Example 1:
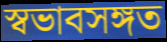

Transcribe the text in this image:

স্বভাবসঙ্গত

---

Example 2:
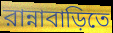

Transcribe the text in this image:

রান্নাবাড়িতে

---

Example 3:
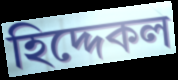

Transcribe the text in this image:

হিদ্দেকল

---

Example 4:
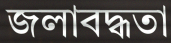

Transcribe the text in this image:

জলাবদ্ধতা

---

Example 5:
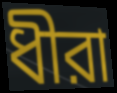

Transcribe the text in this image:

ধীরা